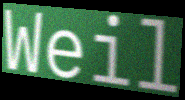
Weil